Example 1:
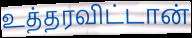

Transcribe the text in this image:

உத்தரவிட்டான்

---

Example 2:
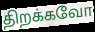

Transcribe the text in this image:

திறக்கவோ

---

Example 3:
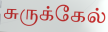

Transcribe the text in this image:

சுருக்கேல்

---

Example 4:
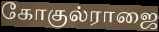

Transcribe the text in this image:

கோகுல்ராஜை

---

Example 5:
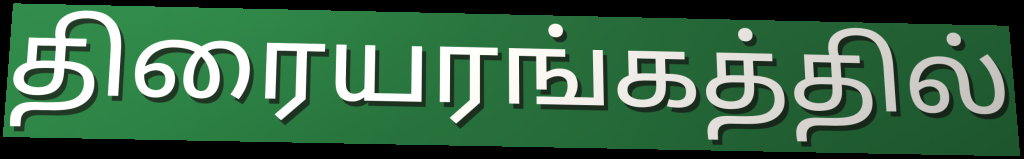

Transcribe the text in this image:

திரையரங்கத்தில்